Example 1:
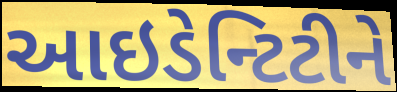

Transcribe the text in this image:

આઇડેન્ટિટીને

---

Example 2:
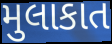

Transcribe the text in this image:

મુલાકાત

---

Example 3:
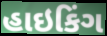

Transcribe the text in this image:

હાઇકિંગ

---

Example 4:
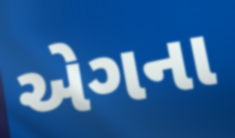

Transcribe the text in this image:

એગના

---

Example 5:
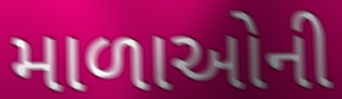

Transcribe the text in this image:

માળાઓની